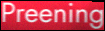
Preening